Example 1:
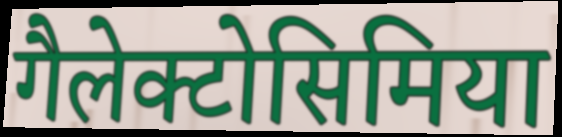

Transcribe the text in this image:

गैलेक्टोसिमिया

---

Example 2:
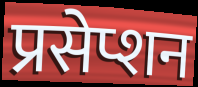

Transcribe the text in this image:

प्रसेप्शन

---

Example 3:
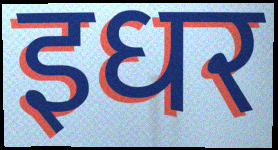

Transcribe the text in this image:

इधर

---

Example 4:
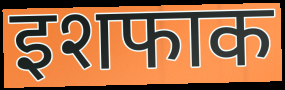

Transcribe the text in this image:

इशफाक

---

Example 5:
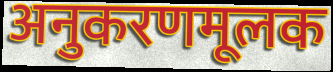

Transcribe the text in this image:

अनुकरणमूलक